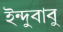
ইন্দুবাবু